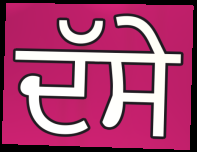
ਦੱਸੇ